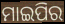
ମାଇପିର